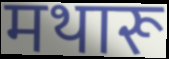
मथारू